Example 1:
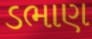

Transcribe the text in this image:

ડભાણ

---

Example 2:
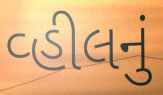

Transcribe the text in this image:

વ્હીલનું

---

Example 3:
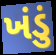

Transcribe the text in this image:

ખંડું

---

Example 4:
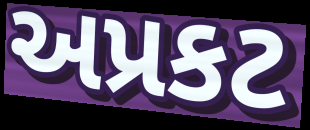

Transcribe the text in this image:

અપ્રકટ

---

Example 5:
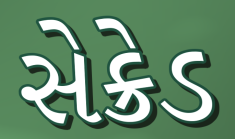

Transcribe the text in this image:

સેક્રેડ